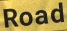
Road